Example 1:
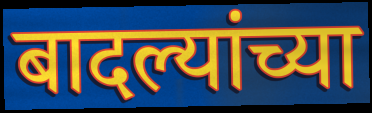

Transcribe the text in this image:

बादल्यांच्या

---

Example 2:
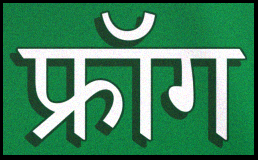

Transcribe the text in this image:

फ्रॉग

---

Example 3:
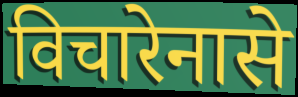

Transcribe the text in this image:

विचारेनासे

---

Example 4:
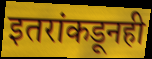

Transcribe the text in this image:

इतरांकडूनही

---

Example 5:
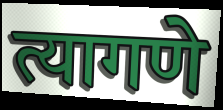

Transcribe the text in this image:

त्यागणे